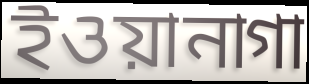
ইওয়ানাগা